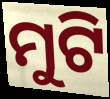
ମୁଟି